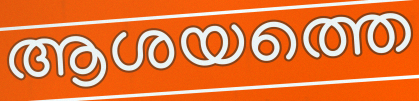
ആശയത്തെ